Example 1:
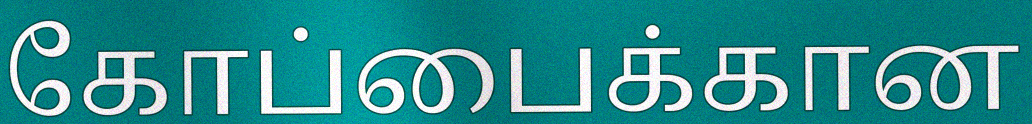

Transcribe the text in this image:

கோப்பைக்கான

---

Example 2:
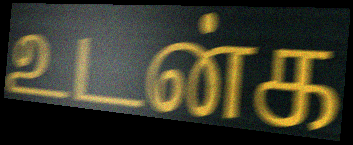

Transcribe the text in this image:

உடன்க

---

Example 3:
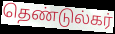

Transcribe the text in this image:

தெண்டுல்கர்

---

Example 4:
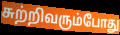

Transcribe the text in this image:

சுற்றிவரும்போது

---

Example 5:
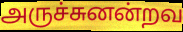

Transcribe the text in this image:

அருச்சுனன்றவ